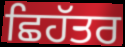
ਛਿਹੱਤਰ